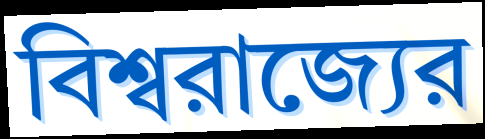
বিশ্বরাজ্যের